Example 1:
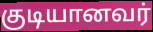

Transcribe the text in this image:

குடியானவர்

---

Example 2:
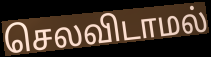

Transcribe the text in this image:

செலவிடாமல்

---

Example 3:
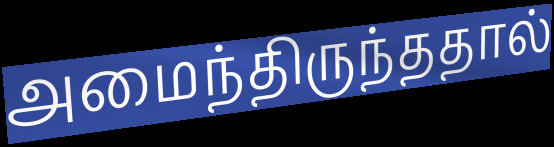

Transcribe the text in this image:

அமைந்திருந்ததால்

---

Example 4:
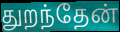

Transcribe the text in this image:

துறந்தேன்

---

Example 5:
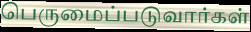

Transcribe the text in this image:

பெருமைப்படுவார்கள்